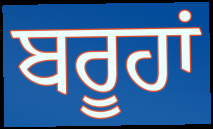
ਬਰੂਹਾਂ